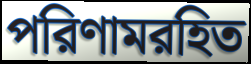
পরিণামরহিত